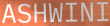
ASHWINI